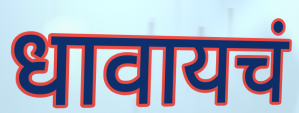
धावायचं